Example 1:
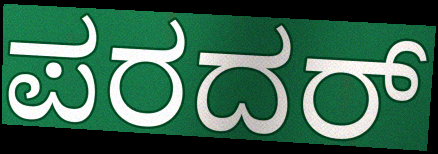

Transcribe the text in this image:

ಪರದರ್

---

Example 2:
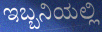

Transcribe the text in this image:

ಇಬ್ಬನಿಯಲ್ಲಿ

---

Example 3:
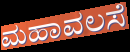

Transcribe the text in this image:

ಮಹಾವಲಸೆ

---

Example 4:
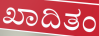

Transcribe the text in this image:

ಖಾದಿತಂ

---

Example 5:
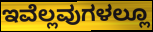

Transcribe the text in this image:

ಇವೆಲ್ಲವುಗಳಲ್ಲೂ